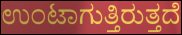
ಉಂಟಾಗುತ್ತಿರುತ್ತದೆ